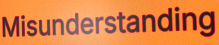
Misunderstanding